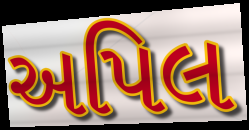
અપિલ